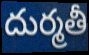
దుర్మతీ